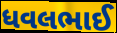
ધવલભાઈ